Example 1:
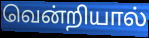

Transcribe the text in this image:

வென்றியால்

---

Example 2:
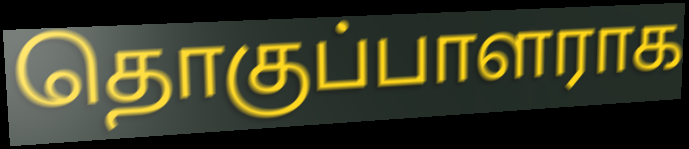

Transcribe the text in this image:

தொகுப்பாளராக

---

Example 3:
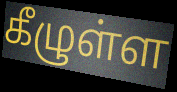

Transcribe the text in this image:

கீழுள்ள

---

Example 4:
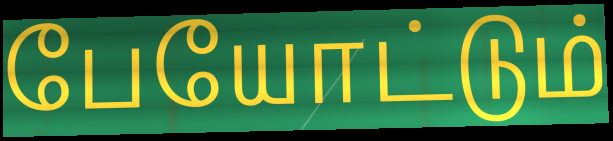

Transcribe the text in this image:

பேயோட்டும்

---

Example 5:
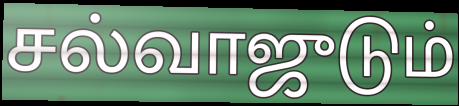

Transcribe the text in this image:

சல்வாஜுடும்